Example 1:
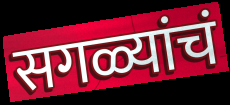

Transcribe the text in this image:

सगळ्यांचं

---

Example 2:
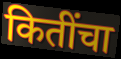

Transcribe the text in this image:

कितींचा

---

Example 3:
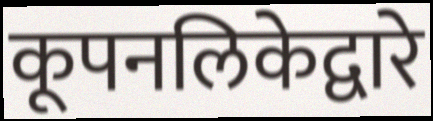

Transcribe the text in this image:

कूपनलिकेद्वारे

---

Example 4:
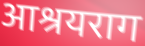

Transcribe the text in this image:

आश्रयराग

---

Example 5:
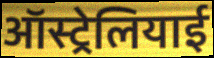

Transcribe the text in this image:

ऑस्ट्रेलियाई